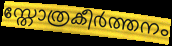
സ്തോത്രകീർത്തനം